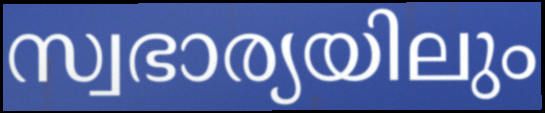
സ്വഭാര്യയിലും